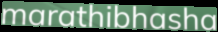
marathibhasha